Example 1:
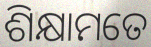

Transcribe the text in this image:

ଶିକ୍ଷାମତେ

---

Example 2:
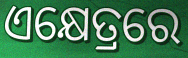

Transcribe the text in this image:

ଏକ୍ଷେତ୍ରରେ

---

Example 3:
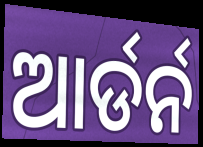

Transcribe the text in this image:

ଆର୍ଡର୍ନ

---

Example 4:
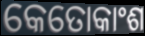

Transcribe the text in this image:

କେତୋକାଂଶ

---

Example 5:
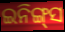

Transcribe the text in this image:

ଇନିଙ୍ଗ୍‌ସ